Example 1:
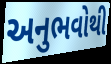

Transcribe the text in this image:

અનુભવોથી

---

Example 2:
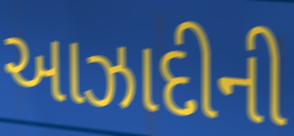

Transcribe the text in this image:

આઝાદીની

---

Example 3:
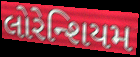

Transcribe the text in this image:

લોરેન્શિયમ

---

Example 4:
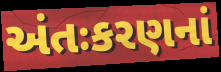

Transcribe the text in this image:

અંતઃકરણનાં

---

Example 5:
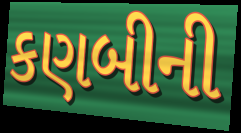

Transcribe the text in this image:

કણબીની